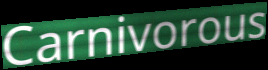
Carnivorous